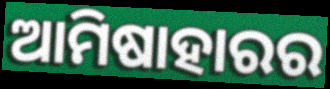
ଆମିଷାହାରର